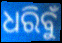
ଧରିବୁଁ